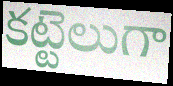
కట్టెలుగా